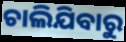
ଚାଲିଯିବାରୁ